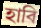
হাবি